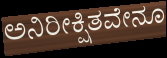
ಅನಿರೀಕ್ಷಿತವೇನೂ